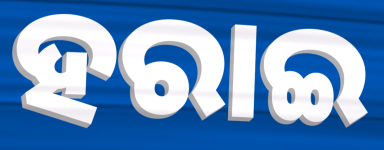
ହରାଇ